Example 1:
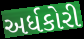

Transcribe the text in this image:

અર્ધકોરી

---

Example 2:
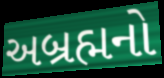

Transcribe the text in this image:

અબ્રહ્મનો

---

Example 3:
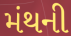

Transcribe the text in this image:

મંથની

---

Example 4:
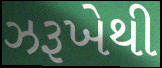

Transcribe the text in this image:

ઝરૂખેથી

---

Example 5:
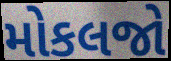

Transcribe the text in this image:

મોકલજો